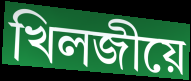
খিলজীয়ে